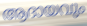
ആദായവും